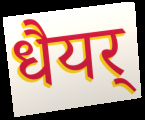
धैयर्